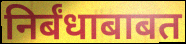
निर्बंधाबाबत